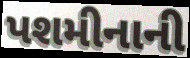
પશમીનાની